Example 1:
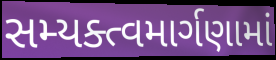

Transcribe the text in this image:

સમ્યક્ત્વમાર્ગણામાં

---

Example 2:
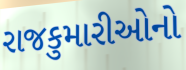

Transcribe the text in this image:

રાજકુમારીઓનો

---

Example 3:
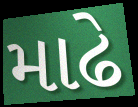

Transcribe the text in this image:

માઢે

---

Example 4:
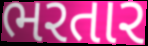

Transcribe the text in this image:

ભરતાર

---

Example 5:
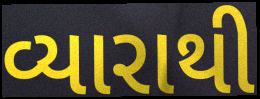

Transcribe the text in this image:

વ્યારાથી